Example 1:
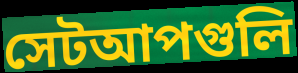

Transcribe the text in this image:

সেটআপগুলি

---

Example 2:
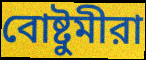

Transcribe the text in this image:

বোষ্টুমীরা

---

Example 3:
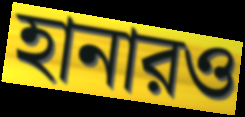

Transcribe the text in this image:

হানারও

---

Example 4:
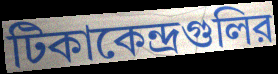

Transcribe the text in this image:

টিকাকেন্দ্রগুলির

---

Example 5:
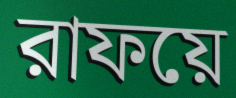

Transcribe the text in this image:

রাফয়ে